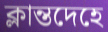
ক্লান্তদেহে